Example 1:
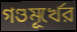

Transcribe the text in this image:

গণ্ডমূর্খের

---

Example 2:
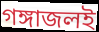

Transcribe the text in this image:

গঙ্গাজলই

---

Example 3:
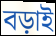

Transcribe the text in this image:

বড়াই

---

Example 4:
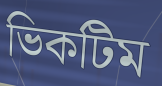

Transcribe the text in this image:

ভিকটিম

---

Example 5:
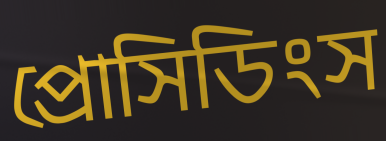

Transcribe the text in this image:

প্রোসিডিংস